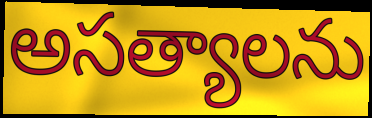
అసత్యాలను